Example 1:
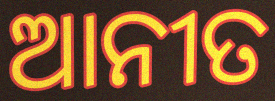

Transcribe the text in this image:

ଆନୀତ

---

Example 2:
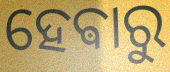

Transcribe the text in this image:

ହେଵାରୁ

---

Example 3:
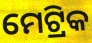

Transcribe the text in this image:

ମେଟ୍ରିକ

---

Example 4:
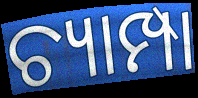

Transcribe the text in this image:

ଚ୍ୟାମ୍ପା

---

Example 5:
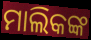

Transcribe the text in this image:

ମାଲିକଙ୍କ